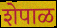
शेपाळ